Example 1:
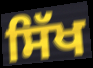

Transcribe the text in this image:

ਸਿੱਖ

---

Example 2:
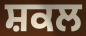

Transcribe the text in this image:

ਸ਼ਕਲ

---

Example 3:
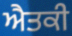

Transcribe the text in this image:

ਐਤਕੀ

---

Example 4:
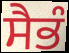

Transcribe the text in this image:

ਸੈਭੰ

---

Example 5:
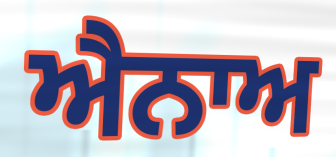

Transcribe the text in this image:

ਐਨਾਅ